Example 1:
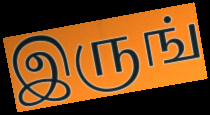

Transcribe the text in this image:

இருங்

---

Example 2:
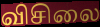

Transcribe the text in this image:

விசிலை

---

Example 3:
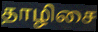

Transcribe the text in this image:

தாழிசை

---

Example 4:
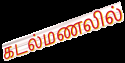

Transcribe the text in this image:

கடல்மணலில்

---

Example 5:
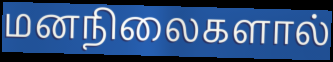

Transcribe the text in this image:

மனநிலைகளால்